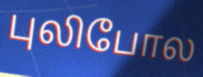
புலிபோல